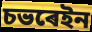
চভৰেইন